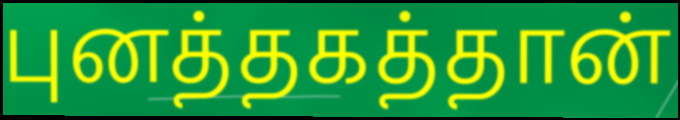
புனத்தகத்தான்